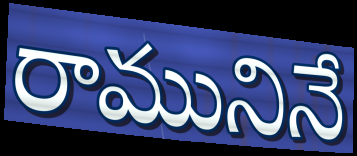
రామునినే